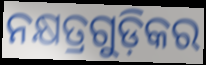
ନକ୍ଷତ୍ରଗୁଡ଼ିକର